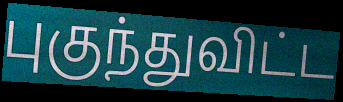
புகுந்துவிட்ட